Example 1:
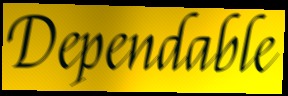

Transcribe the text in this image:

Dependable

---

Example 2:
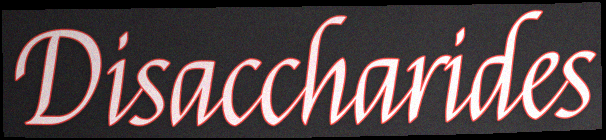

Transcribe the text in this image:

Disaccharides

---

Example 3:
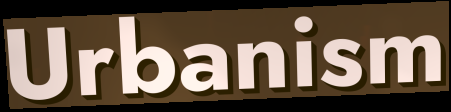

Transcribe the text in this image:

Urbanism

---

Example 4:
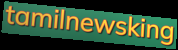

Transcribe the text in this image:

tamilnewsking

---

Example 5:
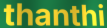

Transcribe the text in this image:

thanthi